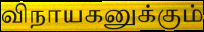
விநாயகனுக்கும்